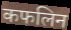
कफलिन